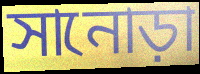
সানোড়া